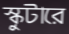
স্কুটারে